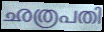
ഛത്രപതി